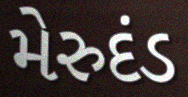
મેરુદંડ